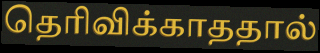
தெரிவிக்காததால்